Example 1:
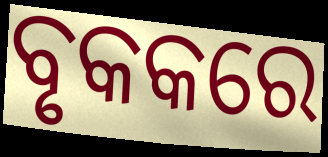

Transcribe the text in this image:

ବୃକକରେ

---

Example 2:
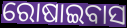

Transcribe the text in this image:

ରୋଷାଇବାସ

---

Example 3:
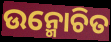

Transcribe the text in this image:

ଉନ୍ମୋଚିତ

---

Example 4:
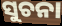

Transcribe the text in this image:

ସୁଚନା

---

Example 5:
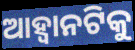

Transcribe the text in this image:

ଆହ୍ଵାନଟିକୁ